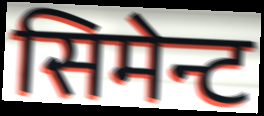
सिमेन्ट